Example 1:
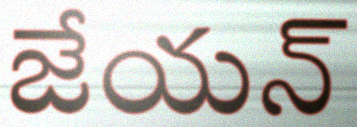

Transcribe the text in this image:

జేయన్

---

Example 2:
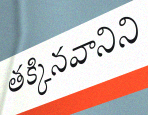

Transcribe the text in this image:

తక్కినవానిని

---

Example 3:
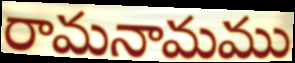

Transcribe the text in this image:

రామనామము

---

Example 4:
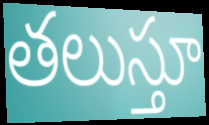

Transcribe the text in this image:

తలుస్తూ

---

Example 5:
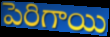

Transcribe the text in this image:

పెరిగాయి